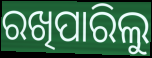
ରଖିପାରିଲୁ